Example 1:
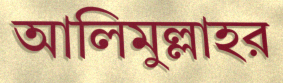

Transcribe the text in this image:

আলিমুল্লাহর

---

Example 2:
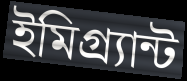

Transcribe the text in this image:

ইমিগ্র্যান্ট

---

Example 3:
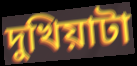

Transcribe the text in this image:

দুখিয়াটা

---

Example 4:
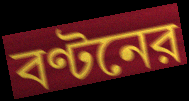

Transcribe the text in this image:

বণ্টনের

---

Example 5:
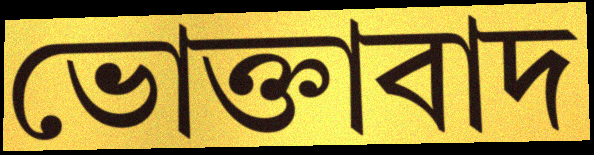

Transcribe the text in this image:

ভোক্তাবাদ